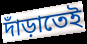
দাঁড়াতেই